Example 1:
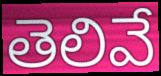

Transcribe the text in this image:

తెలివే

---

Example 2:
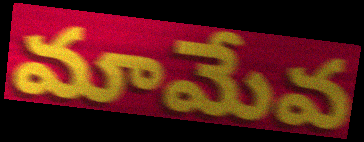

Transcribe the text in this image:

మామేవ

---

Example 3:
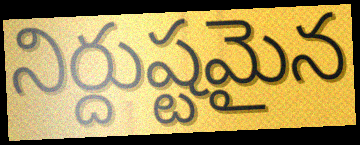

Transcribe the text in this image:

నిర్దుష్టమైన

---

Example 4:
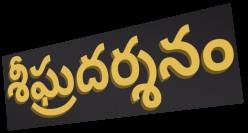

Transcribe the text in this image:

శీఘ్రదర్శనం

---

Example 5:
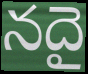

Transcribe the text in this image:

నదై